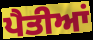
ਪੈਤੀਆਂ